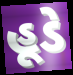
હૂડે